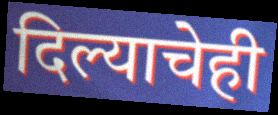
दिल्याचेही